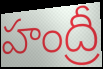
హంద్రీ